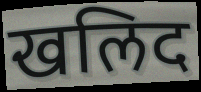
खलिद